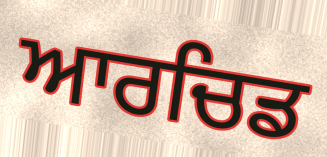
ਆਰਚਿਡ